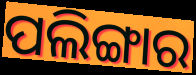
ପଲିଙ୍ଗାର